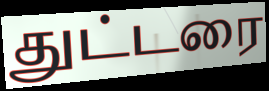
துட்டரை